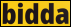
bidda